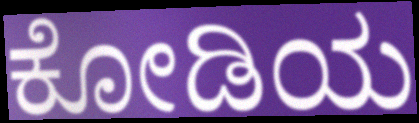
ಕೋಡಿಯ